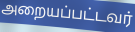
அறையப்பட்டவர்